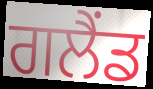
ਗਲੈਂਡ